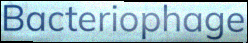
Bacteriophage